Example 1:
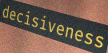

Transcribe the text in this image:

decisiveness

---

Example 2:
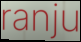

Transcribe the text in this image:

ranju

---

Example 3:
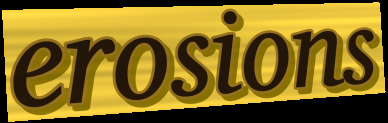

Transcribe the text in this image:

erosions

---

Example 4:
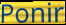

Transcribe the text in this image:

Ponir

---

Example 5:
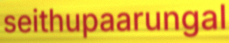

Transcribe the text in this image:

seithupaarungal